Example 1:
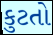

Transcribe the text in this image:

કુટતો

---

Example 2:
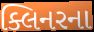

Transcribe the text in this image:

ક્લિનરના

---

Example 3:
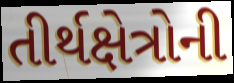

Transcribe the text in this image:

તીર્થક્ષેત્રોની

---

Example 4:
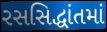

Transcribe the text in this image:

રસસિદ્ધાંતમાં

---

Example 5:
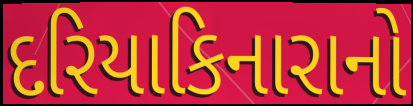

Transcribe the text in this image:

દરિયાકિનારાનો